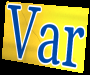
Var